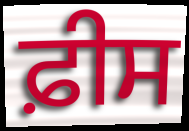
ਫ਼ੀਸ